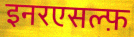
इनरएसल्फ़